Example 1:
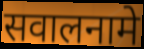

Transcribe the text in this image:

सवालनामे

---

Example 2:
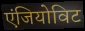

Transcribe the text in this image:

एंजियोविट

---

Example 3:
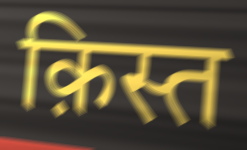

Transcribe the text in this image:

क़िस्त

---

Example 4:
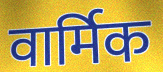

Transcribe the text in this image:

वार्मिक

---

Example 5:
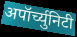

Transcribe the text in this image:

अपॉर्च्युनिटी